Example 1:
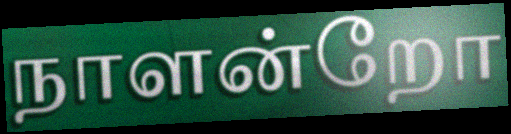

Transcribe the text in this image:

நாளன்றோ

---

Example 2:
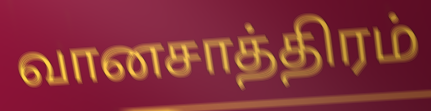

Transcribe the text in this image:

வானசாத்திரம்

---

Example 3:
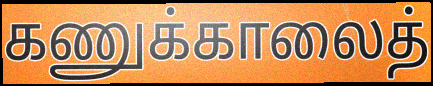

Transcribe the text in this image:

கணுக்காலைத்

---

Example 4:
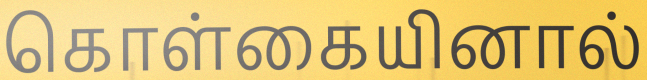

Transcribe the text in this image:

கொள்கையினால்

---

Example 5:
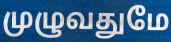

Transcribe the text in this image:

முழுவதுமே